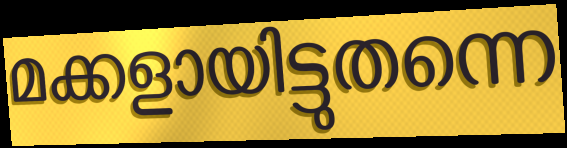
മക്കളായിട്ടുതന്നെ